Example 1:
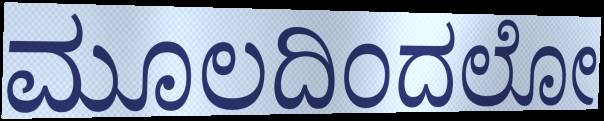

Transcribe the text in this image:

ಮೂಲದಿಂದಲೋ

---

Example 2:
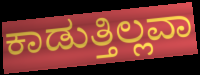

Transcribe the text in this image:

ಕಾಡುತ್ತಿಲ್ಲವಾ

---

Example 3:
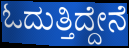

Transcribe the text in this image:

ಓದುತ್ತಿದ್ದೇನೆ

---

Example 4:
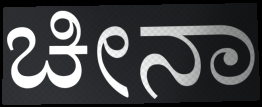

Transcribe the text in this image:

ಚೀನಾ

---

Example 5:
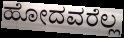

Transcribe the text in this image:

ಹೋದವರೆಲ್ಲ